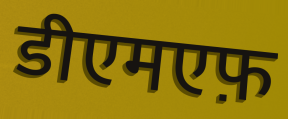
डीएमएफ़